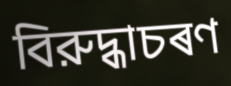
বিৰুদ্ধাচৰণ